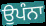
ਉਪੰਨਾ